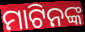
ମାଟିନଙ୍କ